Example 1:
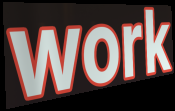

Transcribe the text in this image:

work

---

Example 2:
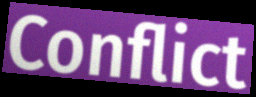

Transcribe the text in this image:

Conflict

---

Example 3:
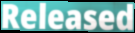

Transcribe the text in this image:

Released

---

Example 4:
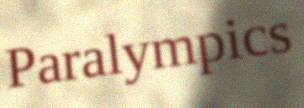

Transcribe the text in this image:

Paralympics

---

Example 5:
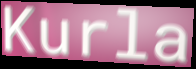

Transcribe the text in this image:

Kurla